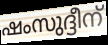
ഷംസുദ്ദീന്